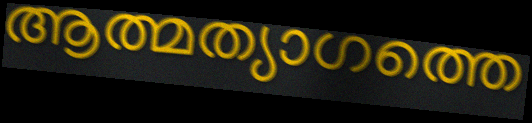
ആത്മത്യാഗത്തെ